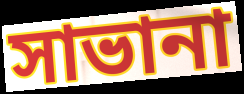
সাভানা